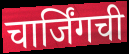
चार्जिंगची